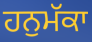
ਹਨੁਮੱਕਾ